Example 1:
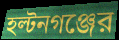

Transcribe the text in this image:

হল্টনগঞ্জের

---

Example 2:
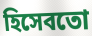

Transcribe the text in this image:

হিসেবতো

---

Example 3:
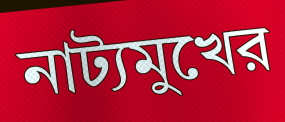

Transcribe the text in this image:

নাট্যমুখের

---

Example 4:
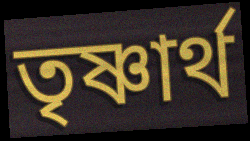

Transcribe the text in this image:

তৃষ্ণার্থ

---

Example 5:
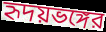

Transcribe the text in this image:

হৃদয়ভঙ্গের